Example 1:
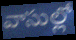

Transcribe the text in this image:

వాసుల్లో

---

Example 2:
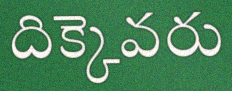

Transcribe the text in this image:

దిక్కెవరు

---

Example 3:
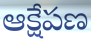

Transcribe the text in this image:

ఆక్షేపణ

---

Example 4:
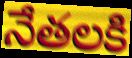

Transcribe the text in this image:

నేతలకి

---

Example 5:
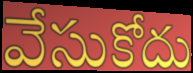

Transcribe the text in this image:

వేసుకోదు